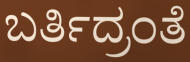
ಬರ್ತಿದ್ರಂತೆ